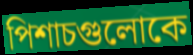
পিশাচগুলোকে